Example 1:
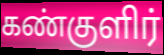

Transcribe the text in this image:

கண்குளிர்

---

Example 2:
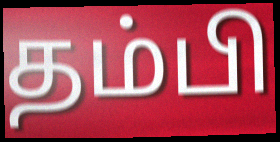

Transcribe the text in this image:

தம்பி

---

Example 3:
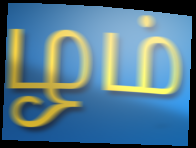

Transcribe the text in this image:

ழம்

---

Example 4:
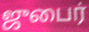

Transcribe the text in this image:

ஜுபைர்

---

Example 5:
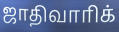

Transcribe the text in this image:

ஜாதிவாரிக்